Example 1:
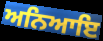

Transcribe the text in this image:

ਅਨਿਆਇ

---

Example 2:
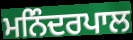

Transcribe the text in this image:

ਮਨਿੰਦਰਪਾਲ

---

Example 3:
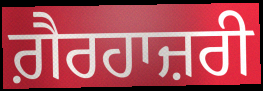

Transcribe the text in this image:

ਗ਼ੈਰਹਾਜ਼ਰੀ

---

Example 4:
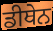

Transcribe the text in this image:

ਡੀਥੇਨ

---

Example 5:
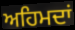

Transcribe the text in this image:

ਅਹਿਮਦਾਂ